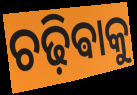
ଚଢ଼ିଵାକୁ